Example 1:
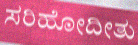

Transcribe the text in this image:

ಸರಿಹೋದೀತು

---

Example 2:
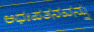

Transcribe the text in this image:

ಅಧಃಪತನವನ್ನು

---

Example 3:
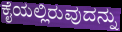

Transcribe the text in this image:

ಕೈಯಲ್ಲಿರುವುದನ್ನು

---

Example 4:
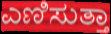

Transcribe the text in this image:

ಎಣಿಸುತ್ತಾ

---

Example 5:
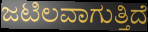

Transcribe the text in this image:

ಜಟಿಲವಾಗುತ್ತಿದೆ